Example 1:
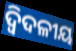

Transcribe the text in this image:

ଦ୍ବିଦଳୀୟ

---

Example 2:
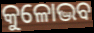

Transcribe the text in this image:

କୁଳୋଦ୍ଭବ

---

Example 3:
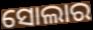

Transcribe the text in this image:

ସୋଲାର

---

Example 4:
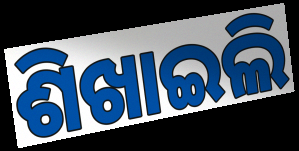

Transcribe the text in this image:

ଶିଖାଇଲି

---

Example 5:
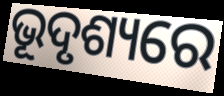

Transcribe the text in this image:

ଭୂଦୃଶ୍ୟରେ